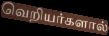
வெறியர்களால்